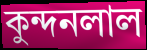
কুন্দনলাল